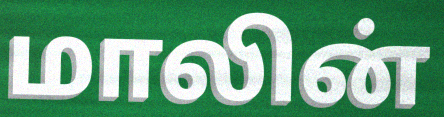
மாலின்